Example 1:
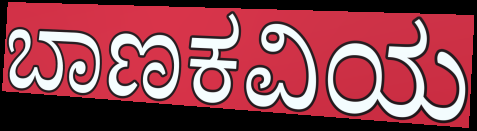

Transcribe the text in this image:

ಬಾಣಕವಿಯ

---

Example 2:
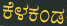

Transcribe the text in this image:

ಕೆಳಕಂಡ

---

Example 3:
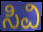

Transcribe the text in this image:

ಸಿವಿ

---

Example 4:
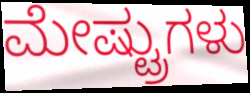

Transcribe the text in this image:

ಮೇಷ್ಟ್ರುಗಳು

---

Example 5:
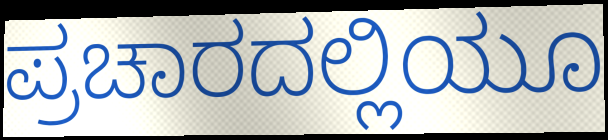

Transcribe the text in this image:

ಪ್ರಚಾರದಲ್ಲಿಯೂ